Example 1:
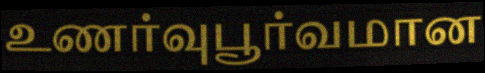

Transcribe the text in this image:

உணர்வுபூர்வமான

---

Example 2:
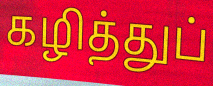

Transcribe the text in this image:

கழித்துப்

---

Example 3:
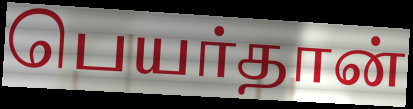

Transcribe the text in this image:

பெயர்தான்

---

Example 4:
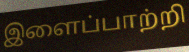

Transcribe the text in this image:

இளைப்பாற்றி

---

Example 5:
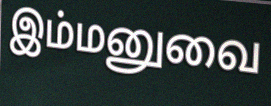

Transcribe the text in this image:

இம்மனுவை